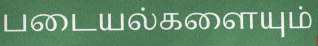
படையல்களையும்